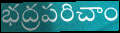
భద్రపరిచాం